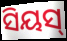
ସିୟସ୍